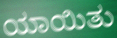
ಯಾಯಿತು